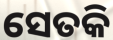
ସେତକି